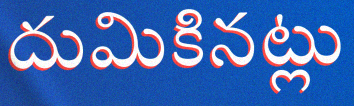
దుమికినట్లు